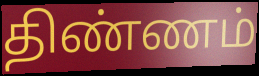
திண்ணம்